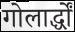
गोलार्द्धों